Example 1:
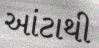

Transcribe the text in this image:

આંટાથી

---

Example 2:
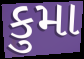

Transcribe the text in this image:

કુમા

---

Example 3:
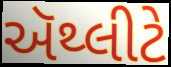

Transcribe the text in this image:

ઍથ્લીટે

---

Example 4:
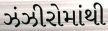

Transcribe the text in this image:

ઝંઝીરોમાંથી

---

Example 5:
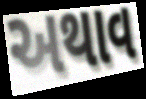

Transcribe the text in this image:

અથાવ